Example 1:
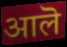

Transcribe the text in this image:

आलॆ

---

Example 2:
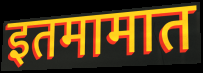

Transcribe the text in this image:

इतमामात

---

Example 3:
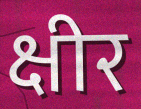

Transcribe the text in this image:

क्षीर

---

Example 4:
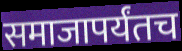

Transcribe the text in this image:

समाजापर्यंतच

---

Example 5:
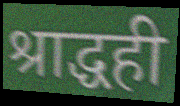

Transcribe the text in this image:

श्राद्धही